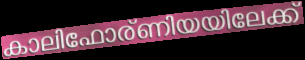
കാലിഫോര്ണിയയിലേക്ക്